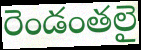
రెండంతలై